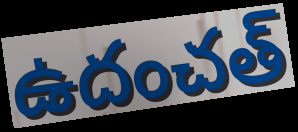
ఉదంచత్